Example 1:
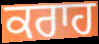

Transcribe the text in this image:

ਕਰਾਹ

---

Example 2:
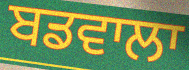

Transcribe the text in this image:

ਬਡਵਾਲਾ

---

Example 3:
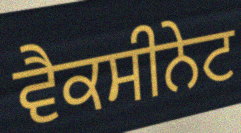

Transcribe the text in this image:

ਵੈਕਸੀਨੇਟ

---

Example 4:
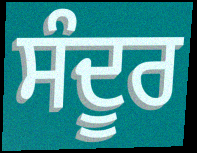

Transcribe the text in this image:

ਸੰਦੂਰ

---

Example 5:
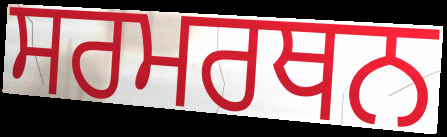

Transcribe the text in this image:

ਸਰਮਰਥਨ